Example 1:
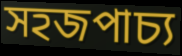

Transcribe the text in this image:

সহজপাচ্য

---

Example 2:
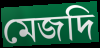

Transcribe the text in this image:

মেজদি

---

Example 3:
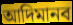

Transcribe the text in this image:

আদিমানব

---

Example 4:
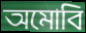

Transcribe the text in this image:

অমোবি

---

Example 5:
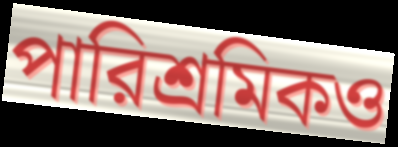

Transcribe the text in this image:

পারিশ্রমিকও